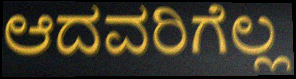
ಆದವರಿಗೆಲ್ಲ